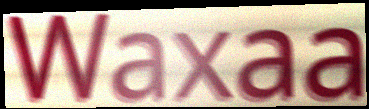
Waxaa